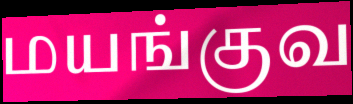
மயங்குவ